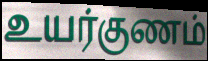
உயர்குணம்